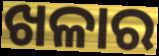
ଖଳାର